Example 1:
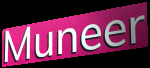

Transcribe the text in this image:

Muneer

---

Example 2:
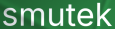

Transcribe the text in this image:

smutek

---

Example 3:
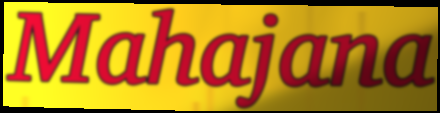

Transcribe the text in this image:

Mahajana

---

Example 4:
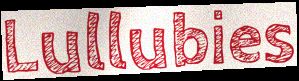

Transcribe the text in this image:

Lullubies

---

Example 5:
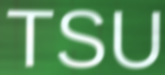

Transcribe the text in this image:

TSU